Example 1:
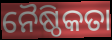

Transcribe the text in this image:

ନୈଷ୍ଠିକତା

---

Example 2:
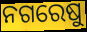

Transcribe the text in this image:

ନଗରେଷୁ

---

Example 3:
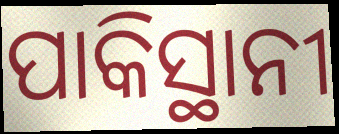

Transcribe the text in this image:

ପାକିସ୍ଥାନୀ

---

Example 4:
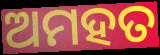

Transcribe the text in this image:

ଅମହତ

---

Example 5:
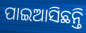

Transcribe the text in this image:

ପାଇଆସିଛନ୍ତି